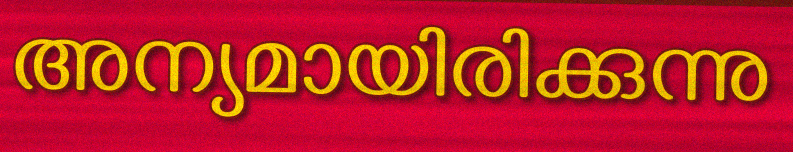
അന്യമായിരിക്കുന്നു